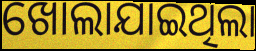
ଖୋଲାଯାଇଥିଲା